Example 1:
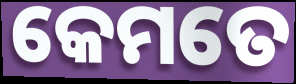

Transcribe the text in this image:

କେମତେ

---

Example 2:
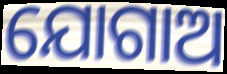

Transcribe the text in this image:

ଯୋଗାଅ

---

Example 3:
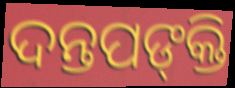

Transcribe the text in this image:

ଦନ୍ତପଙ୍‍କ୍ତି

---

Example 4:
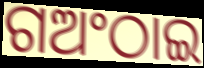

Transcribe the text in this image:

ଗଅଂଠାଇ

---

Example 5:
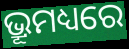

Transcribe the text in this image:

ଭ୍ରୂମଧ୍ୟରେ